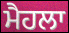
ਮੈਹਲਾ